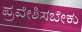
ಪ್ರವೇಶಿಸಬೇಕು